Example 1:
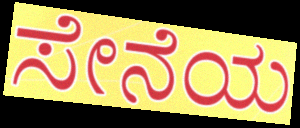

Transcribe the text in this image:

ಸೇನೆಯ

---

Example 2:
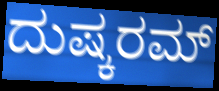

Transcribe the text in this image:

ದುಷ್ಕರಮ್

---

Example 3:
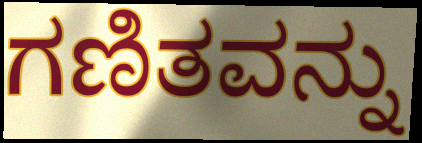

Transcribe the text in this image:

ಗಣಿತವನ್ನು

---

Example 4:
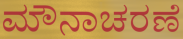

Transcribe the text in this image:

ಮೌನಾಚರಣೆ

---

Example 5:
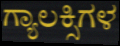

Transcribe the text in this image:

ಗ್ಯಾಲಕ್ಸಿಗಳ